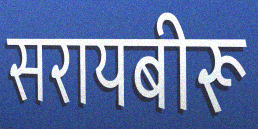
सरायबीरू